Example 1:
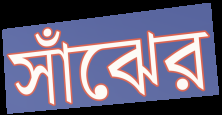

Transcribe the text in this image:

সাঁঝের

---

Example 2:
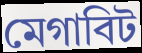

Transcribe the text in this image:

মেগাবিট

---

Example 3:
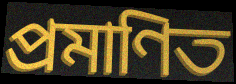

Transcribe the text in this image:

প্রমাণিত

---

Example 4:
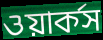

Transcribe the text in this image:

ওয়ার্কস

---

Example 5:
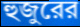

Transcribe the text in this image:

হুজুরের